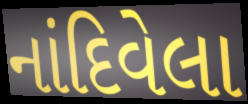
નાંદિવેલા